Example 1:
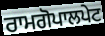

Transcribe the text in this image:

ਰਾਮਗੋਪਾਲਪੇਟ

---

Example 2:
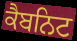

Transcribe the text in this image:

ਕੈਬਨਿਟ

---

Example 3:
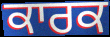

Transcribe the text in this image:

ਕਾਰਕ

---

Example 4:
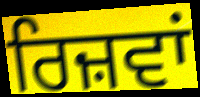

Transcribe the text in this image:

ਰਿਜ਼ਵਾਂ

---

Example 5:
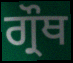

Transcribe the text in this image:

ਗ੍ਰੌਥ